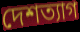
দেশত্যাগ